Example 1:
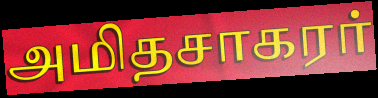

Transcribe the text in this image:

அமிதசாகரர்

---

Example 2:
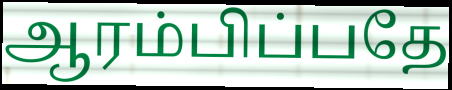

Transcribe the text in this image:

ஆரம்பிப்பதே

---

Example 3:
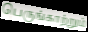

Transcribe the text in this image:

பெருங்காற்றும்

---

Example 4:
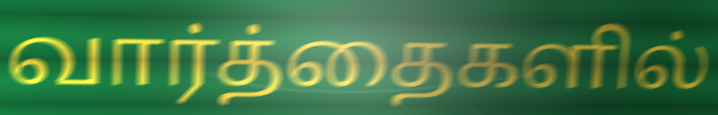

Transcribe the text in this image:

வார்த்தைகளில்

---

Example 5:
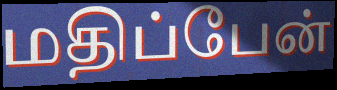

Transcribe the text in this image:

மதிப்பேன்